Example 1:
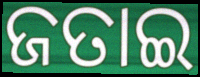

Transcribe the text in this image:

ଜତାଇ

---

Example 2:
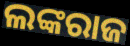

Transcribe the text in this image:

ଲଙ୍କରାଜ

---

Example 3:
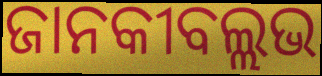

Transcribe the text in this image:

ଜାନକୀବଲ୍ଲଭ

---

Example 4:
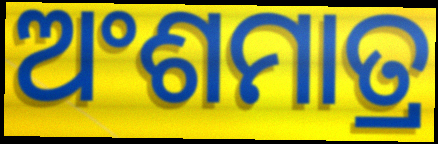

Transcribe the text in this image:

ଅଂଶମାତ୍ର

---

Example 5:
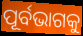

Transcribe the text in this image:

ପୂର୍ବଭାଗକୁ